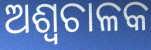
ଅଶ୍ୱଚାଳକ